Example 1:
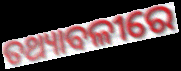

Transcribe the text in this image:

ତଥ୍ୟାବଳୀରେ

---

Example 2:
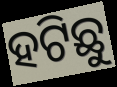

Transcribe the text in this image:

ହଟିଛୁ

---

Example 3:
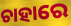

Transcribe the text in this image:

ଚାହାରେ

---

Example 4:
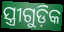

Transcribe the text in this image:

ସ୍ତ୍ରୀଗୁଡ଼ିକ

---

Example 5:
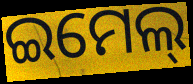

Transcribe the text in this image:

ଇମେଲ୍